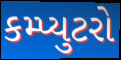
કમ્પ્યુટરો